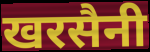
खरसैनी